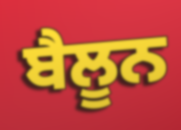
ਬੈਲੂਨ